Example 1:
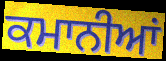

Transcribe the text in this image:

ਕਮਾਨੀਆਂ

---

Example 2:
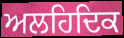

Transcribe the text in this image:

ਅਲਹਿਦਿਕ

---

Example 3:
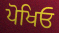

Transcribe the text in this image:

ਪੋਖਿਓ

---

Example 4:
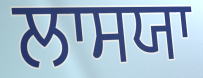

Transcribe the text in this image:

ਲਾਸਯਾ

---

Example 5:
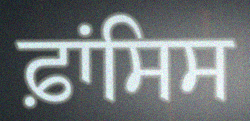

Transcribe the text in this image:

ਫ਼ਾਂਸਿਸ